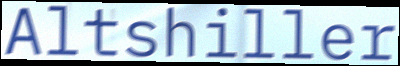
Altshiller